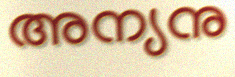
അന്യനു